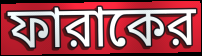
ফারাকের